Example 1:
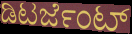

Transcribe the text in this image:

ಡಿಟರ್ಜೆಂಟ್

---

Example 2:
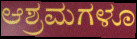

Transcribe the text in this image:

ಆಶ್ರಮಗಳೂ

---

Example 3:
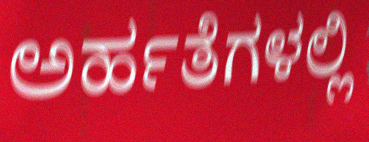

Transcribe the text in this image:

ಅರ್ಹತೆಗಳಲ್ಲಿ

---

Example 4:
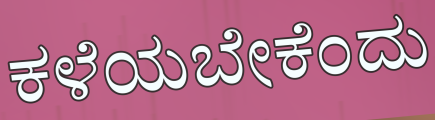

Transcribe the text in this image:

ಕಳೆಯಬೇಕೆಂದು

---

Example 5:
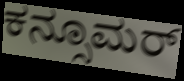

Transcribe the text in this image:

ಕನ್ಸೂಮರ್